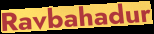
Ravbahadur